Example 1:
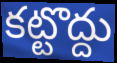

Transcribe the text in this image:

కట్టొద్దు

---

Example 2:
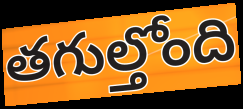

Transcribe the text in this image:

తగుల్తోంది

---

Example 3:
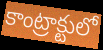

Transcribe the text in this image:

కాంట్రాక్టులో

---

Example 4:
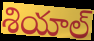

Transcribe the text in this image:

శియాల్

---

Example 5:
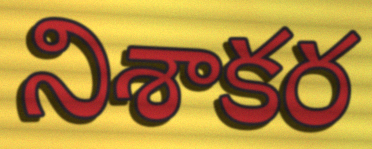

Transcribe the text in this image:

నిశాకర